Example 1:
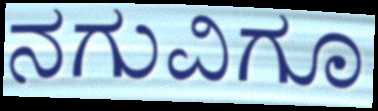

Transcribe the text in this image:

ನಗುವಿಗೂ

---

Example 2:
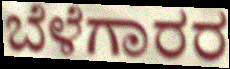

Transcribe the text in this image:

ಬೆಳೆಗಾರರ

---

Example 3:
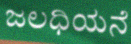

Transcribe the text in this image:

ಜಲಧಿಯನೆ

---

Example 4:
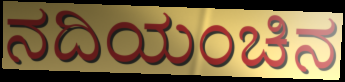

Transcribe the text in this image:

ನದಿಯಂಚಿನ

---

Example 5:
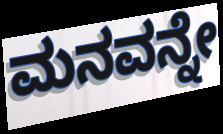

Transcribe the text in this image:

ಮನವನ್ನೇ